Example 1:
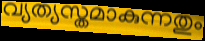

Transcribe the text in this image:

വ്യത്യസ്തമാകുന്നതും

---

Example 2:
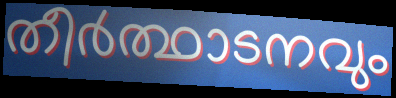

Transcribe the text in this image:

തീർത്ഥാടനവും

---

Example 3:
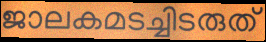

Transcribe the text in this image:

ജാലകമടച്ചിടരുത്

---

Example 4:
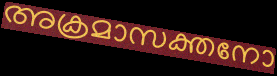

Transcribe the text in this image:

അക്രമാസക്തനോ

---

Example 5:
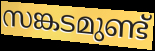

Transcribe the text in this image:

സങ്കടമുണ്ട്